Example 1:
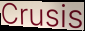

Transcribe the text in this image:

Crusis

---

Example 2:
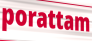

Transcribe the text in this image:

porattam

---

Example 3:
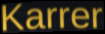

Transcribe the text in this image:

Karrer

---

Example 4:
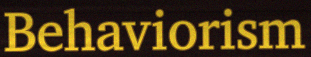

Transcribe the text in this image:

Behaviorism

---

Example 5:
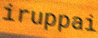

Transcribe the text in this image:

iruppai